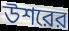
উশরের